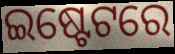
ଇଷ୍ଟେଟରେ